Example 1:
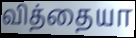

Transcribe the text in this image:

வித்தையா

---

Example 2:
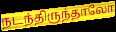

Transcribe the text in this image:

நடந்திருந்தாலோ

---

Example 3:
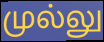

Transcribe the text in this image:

முல்லு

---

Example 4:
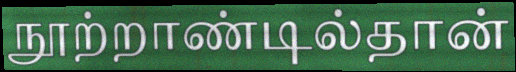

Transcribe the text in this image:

நூற்றாண்டில்தான்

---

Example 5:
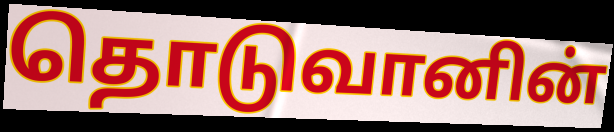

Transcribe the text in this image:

தொடுவானின்